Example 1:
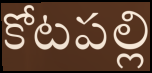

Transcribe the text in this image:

కోటపల్లి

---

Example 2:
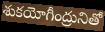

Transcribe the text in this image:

శుకయోగీంద్రునితో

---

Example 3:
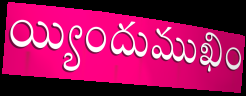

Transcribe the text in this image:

య్యిందుముఖిం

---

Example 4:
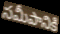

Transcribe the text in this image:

సమీపానికి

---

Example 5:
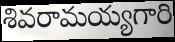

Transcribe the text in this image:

శివరామయ్యగారి